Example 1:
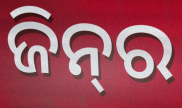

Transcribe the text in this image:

ଜିନ୍‍ର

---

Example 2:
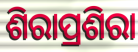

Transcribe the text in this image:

ଶିରାପ୍ରଶିରା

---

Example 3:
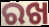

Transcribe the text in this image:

ରଖ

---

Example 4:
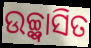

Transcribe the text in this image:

ଉଚ୍ଛ୍ୱାସିତ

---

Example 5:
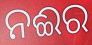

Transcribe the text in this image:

ନଈର